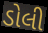
ડોલી